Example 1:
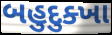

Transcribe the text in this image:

બહુદુક્ખા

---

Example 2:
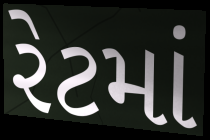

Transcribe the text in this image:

રેટમાં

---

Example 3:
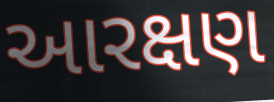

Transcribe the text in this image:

આરક્ષણ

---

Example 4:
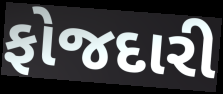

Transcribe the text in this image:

ફોજદારી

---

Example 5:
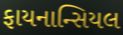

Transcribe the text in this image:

ફાયનાન્સિયલ